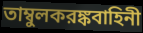
তাম্বুলকরঙ্কবাহিনী